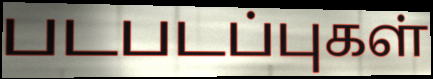
படபடப்புகள்